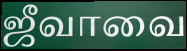
ஜீவாவை